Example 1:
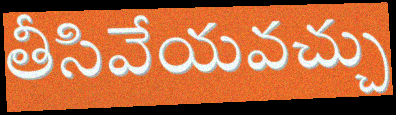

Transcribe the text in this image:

తీసివేయవచ్చు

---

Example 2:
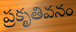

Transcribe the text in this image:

ప్రకృతివనం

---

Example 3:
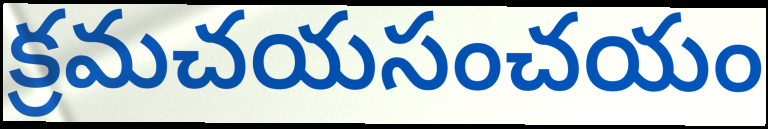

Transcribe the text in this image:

క్రమచయసంచయం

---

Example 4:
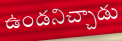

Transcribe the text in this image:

ఉండనిచ్చాడు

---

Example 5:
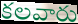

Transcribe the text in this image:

కలవారు